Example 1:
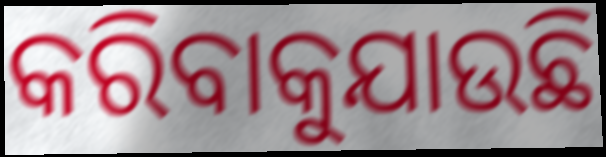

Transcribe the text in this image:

କରିବାକୁଯାଉଛି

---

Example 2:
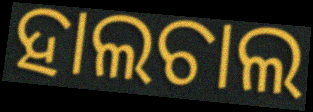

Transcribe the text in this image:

ହାଲଚାଲ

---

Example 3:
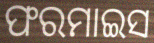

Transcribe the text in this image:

ଫରମାଇସ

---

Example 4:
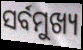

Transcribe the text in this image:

ସର୍ବମୁଖ୍ୟ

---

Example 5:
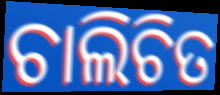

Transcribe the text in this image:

ଚାଲିଚିତ